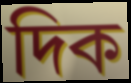
দিক